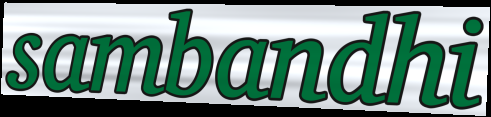
sambandhi